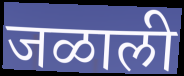
जळाली